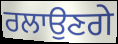
ਰਲਾਉਣਗੇ